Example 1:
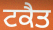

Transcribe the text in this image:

ਟਕੈਤ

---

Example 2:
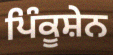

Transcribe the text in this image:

ਪਿੰਕੂਸ਼ੇਨ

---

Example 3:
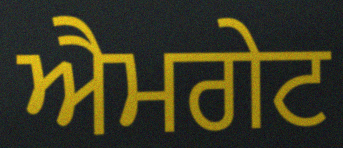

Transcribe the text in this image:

ਐਮਗੇਟ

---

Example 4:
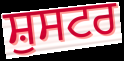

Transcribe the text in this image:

ਸ਼ੁਸਟਰ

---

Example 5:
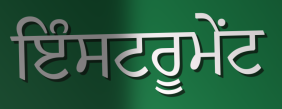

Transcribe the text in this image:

ਇੰਸਟਰੂਮੇਂਟ